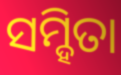
ସମ୍ହିତା